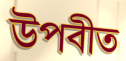
উপবীত